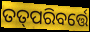
ତତ୍‌ପରିବର୍ତ୍ତେ